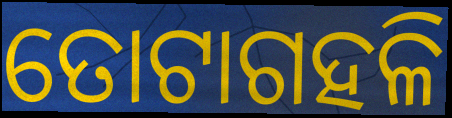
ତୋଟାଗହଳି